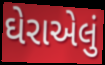
ઘેરાએલું